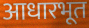
आधारभूत